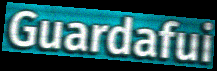
Guardafui